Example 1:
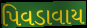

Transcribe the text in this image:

પિવડાવાય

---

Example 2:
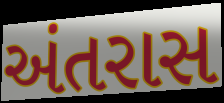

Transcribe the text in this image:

અંતરાસ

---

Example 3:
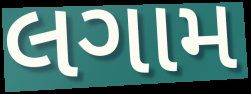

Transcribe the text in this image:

લગામ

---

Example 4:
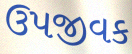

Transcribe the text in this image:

ઉપજીવક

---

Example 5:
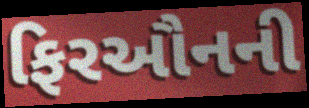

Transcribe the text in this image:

ફિરઔનની